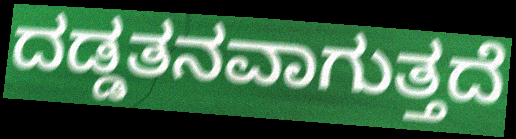
ದಡ್ಡತನವಾಗುತ್ತದೆ